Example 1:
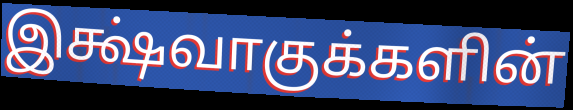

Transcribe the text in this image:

இக்ஷ்வாகுக்களின்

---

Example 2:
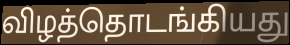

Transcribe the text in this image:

விழத்தொடங்கியது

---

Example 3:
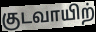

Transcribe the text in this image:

குடவாயிற்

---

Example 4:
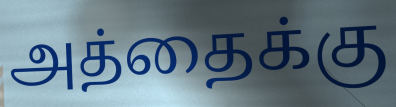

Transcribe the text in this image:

அத்தைக்கு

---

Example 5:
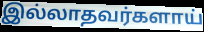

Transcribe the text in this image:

இல்லாதவர்களாய்